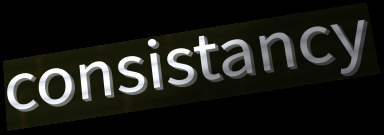
consistancy